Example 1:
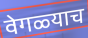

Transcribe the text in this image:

वेगळ्याच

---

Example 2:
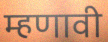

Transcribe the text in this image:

म्हणावी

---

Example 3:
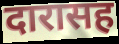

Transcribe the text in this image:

दारासह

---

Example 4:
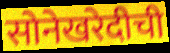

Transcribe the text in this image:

सोनेखरेदीची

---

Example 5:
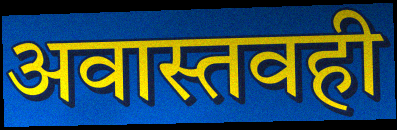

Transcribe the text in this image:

अवास्तवही